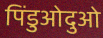
पिंडुओदुओ